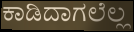
ಕಾಡಿದಾಗಲೆಲ್ಲ